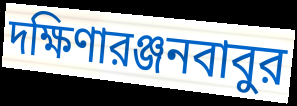
দক্ষিণারঞ্জনবাবুর